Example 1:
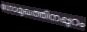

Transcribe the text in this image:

ഗോമുഖത്തിനപ്പുറം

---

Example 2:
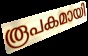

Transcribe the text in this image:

രൂപകമായി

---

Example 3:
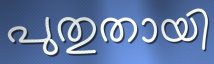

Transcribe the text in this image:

പുതുതായി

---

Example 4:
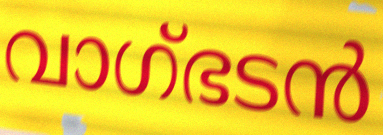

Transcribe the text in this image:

വാഗ്ഭടൻ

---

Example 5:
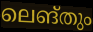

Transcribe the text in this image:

ലെങ്തും